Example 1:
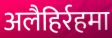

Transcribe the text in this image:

अलैहिर्रहमा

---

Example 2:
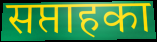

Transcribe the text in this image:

सप्ताहका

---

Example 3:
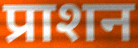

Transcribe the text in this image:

प्राशन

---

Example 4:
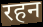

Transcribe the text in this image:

रहन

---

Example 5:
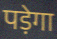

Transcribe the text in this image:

पड़ेगा